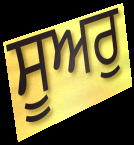
ਸੂਅਰੁ